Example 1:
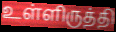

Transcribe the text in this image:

உள்ளிருத்தி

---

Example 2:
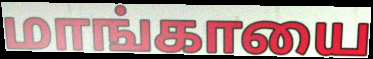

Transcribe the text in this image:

மாங்காயை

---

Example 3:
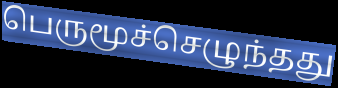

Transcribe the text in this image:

பெருமூச்செழுந்தது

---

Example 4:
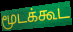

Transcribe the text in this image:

மூடக்கூட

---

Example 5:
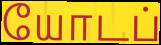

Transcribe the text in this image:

யோடப்